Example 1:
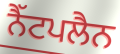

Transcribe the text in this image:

ਨੈੱਟਪਲੈਨ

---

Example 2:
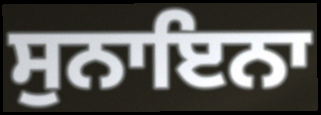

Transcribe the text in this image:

ਸੁਨਾਇਨਾ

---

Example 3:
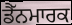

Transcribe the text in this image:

ਡੈੱਨਮਾਰਕ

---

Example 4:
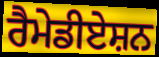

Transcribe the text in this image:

ਰੈਮੇਡੀਏਸ਼ਨ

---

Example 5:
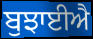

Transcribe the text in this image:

ਬੁਝਾਈਐ